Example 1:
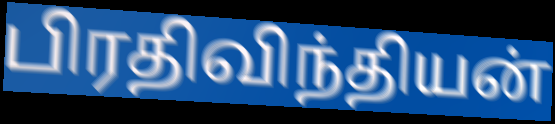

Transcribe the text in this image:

பிரதிவிந்தியன்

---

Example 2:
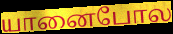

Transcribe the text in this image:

யானைபோல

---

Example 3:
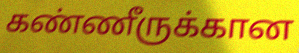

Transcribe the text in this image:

கண்ணீருக்கான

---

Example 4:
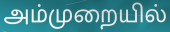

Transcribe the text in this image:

அம்முறையில்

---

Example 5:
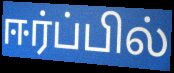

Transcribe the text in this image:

ஈர்ப்பில்